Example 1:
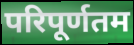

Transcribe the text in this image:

परिपूर्णतम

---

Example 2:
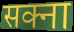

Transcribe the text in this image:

सक्ना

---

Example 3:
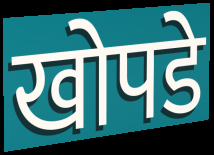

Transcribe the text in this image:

खोपडे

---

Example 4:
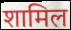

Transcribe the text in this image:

शामिल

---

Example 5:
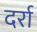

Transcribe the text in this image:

दर्रा